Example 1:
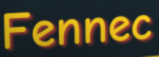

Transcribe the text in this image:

Fennec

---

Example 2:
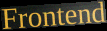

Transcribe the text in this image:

Frontend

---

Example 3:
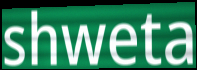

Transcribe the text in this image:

shweta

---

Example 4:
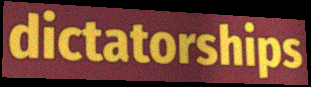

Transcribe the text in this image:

dictatorships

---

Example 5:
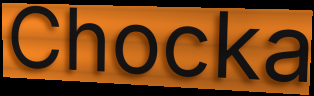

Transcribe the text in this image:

Chocka